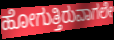
ಹೋಗುತ್ತಿರುವಾಗಲೇ